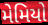
મેમિયો